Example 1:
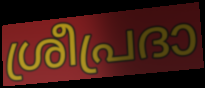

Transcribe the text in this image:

ശ്രീപ്രദാ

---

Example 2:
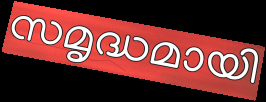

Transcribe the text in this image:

സമൃദ്ധമായി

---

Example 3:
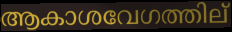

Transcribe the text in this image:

ആകാശവേഗത്തില്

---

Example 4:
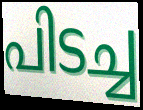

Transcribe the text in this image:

പിടച്ച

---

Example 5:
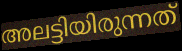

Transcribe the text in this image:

അലട്ടിയിരുന്നത്